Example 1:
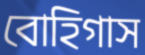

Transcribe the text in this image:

বোহিগাস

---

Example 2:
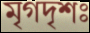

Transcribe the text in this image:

মৃগদৃশঃ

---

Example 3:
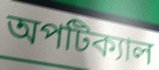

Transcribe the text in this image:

অপটিক্যাল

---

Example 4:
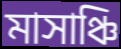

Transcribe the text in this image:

মাসাঞ্চি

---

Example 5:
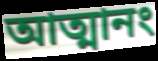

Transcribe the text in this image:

আত্মানং